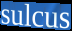
sulcus